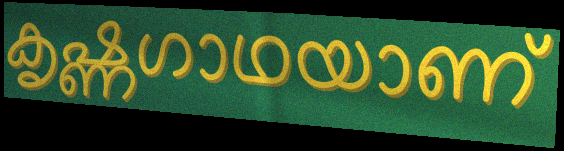
കൃഷ്ണഗാഥയാണ്